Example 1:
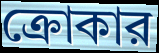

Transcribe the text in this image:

ক্রোকার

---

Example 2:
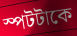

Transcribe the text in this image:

স্পটটাকে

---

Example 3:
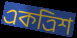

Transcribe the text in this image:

একত্রিশ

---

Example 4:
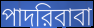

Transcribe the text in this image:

পাদরিবাবা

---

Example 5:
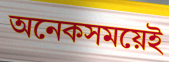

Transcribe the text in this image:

অনেকসময়েই